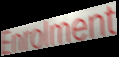
Enrolment